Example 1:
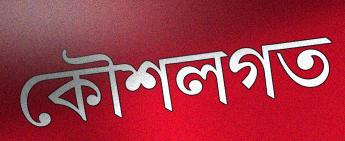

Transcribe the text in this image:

কৌশলগত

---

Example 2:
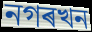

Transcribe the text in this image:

নগৰখন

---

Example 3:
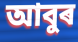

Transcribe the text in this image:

আবুৰ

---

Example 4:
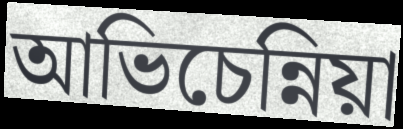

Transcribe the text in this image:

আভিচেন্নিয়া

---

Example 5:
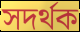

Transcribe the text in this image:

সদৰ্থক